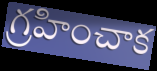
గ్రహించాక